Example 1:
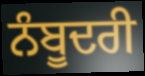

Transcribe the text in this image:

ਨੰਬੂਦਰੀ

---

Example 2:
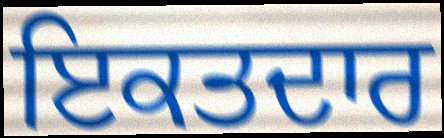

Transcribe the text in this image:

ਇਕਤਦਾਰ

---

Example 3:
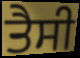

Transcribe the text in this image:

ਤੈਸੀ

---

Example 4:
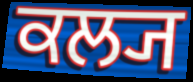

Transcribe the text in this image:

ਕਲ੍ਯ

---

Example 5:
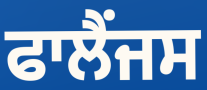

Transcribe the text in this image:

ਫਾਲੈਂਜਸ